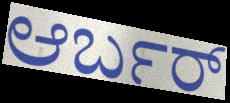
ಆರ್ಬರ್